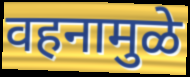
वहनामुळे